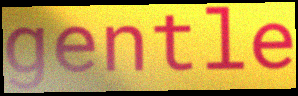
gentle